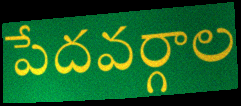
పేదవర్గాల